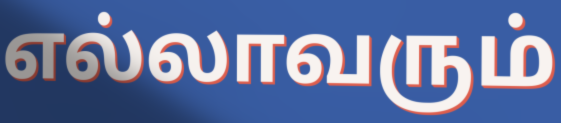
எல்லாவரும்